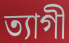
ত্যাগী